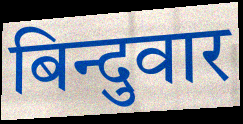
बिन्‍दुवार